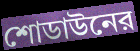
শোডাউনের